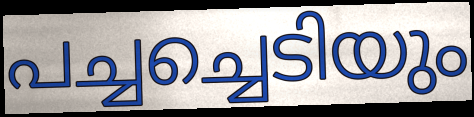
പച്ചച്ചെടിയും